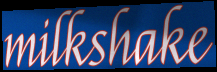
milkshake